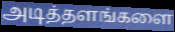
அடித்தளங்களை